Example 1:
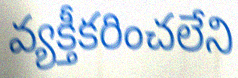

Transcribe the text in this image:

వ్యక్తీకరించలేని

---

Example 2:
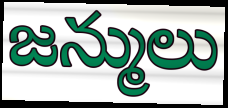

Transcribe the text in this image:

జన్ములు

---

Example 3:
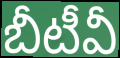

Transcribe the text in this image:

బీటీవీ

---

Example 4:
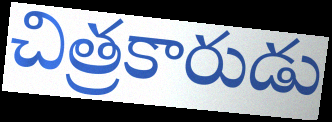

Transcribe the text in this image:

చిత్రకారుడు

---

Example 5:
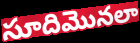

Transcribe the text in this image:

సూదిమొనలా